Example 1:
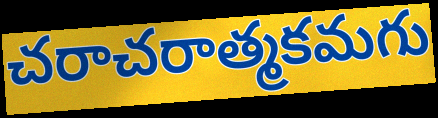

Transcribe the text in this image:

చరాచరాత్మకమగు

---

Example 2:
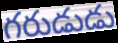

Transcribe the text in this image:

గరుడుడు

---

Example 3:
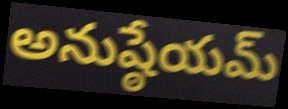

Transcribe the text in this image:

అనుష్ఠేయమ్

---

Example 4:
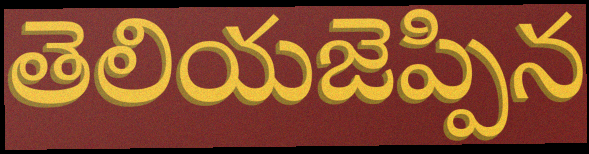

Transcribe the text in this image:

తెలియజెప్పిన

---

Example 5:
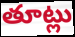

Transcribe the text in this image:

తూట్లు